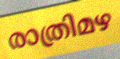
രാത്രിമഴ